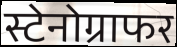
स्टेनोग्राफर